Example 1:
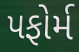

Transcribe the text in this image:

પફોર્મ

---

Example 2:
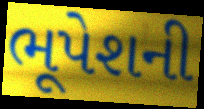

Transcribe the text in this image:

ભૂપેશની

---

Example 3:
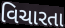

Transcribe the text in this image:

વિચારતા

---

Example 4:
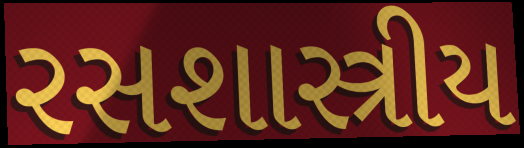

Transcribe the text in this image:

રસશાસ્ત્રીય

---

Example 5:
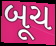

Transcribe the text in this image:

બૂચ